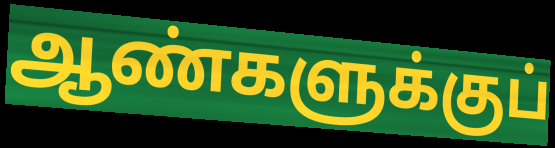
ஆண்களுக்குப்